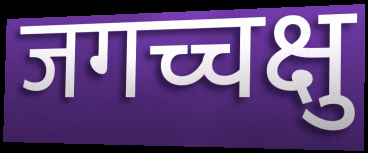
जगच्चक्षु